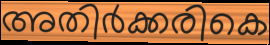
അതിർക്കരികെ